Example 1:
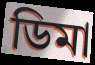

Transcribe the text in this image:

ডিমা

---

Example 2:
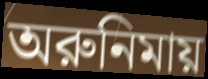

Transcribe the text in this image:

অরুনিমায়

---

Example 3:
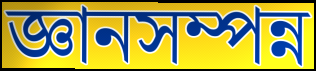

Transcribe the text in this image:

জ্ঞানসম্পন্ন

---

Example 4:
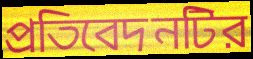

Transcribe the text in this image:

প্রতিবেদনটির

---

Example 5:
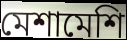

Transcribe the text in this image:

মেশামেশি